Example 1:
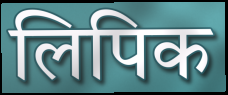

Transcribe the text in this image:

लिपिक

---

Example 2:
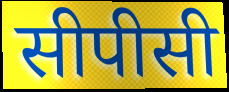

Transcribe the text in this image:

सीपीसी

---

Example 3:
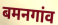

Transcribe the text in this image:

बमनगांव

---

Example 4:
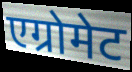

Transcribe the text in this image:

एग्रोमेट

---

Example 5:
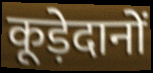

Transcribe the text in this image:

कूड़ेदानों